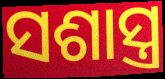
ସଶାସ୍ତ୍ର